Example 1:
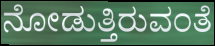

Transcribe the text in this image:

ನೋಡುತ್ತಿರುವಂತೆ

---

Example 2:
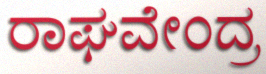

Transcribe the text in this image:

ರಾಘವೇಂದ್ರ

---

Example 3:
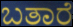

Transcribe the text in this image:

ಬತಾರೆ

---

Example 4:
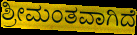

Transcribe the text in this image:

ಶ್ರೀಮಂತವಾಗಿದೆ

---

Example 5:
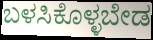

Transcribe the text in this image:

ಬಳಸಿಕೊಳ್ಳಬೇಡ